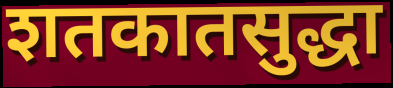
शतकातसुद्धा